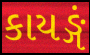
કાયઙ્ગં